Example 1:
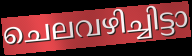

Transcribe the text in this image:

ചെലവഴിച്ചിട്ടാ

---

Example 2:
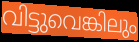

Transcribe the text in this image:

വിട്ടുവെങ്കിലും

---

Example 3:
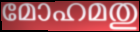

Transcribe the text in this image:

മോഹമതു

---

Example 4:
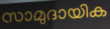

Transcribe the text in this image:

സാമുദായിക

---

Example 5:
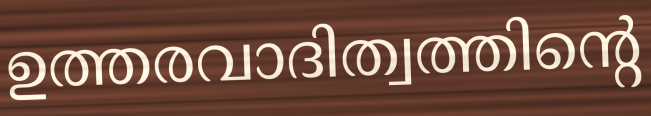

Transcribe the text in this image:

ഉത്തരവാദിത്വത്തിന്റെ